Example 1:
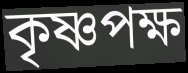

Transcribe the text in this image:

কৃষ্ণপক্ষ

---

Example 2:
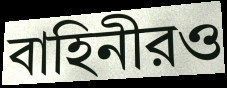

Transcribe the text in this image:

বাহিনীরও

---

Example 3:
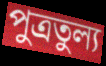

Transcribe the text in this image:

পুত্রতুল্য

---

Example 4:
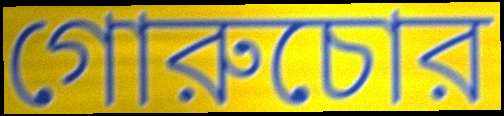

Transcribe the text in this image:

গোরুচোর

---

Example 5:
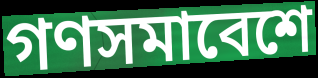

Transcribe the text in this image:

গণসমাবেশে